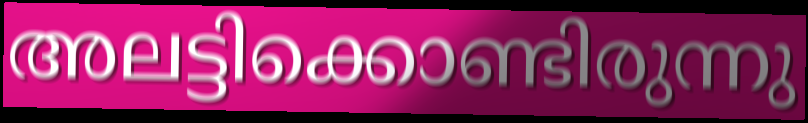
അലട്ടിക്കൊണ്ടിരുന്നു